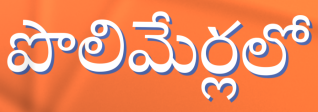
పొలిమేర్లలో